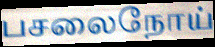
பசலைநோய்